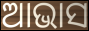
ଆଭାସ